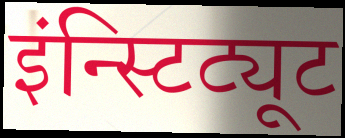
इंन्स्टिट्यूट